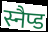
स्नैप्ड